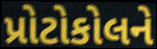
પ્રોટોકોલને